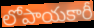
లోపాయకారీ